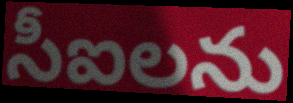
సీఐలను